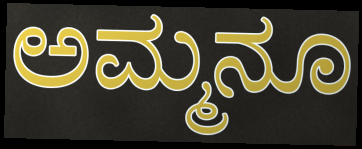
ಅಮ್ಮನೂ